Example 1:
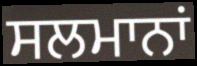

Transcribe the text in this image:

ਸਲਮਾਨਾਂ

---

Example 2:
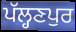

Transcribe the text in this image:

ਪੱਲ੍ਹਣਪੁਰ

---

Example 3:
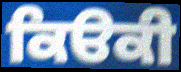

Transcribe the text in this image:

ਕਿੳਕੀ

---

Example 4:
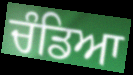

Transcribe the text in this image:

ਚੰਡਿਆ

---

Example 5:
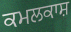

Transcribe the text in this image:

ਕਮਲਕਾਸ਼